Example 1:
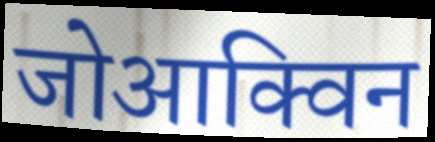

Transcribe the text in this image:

जोआक्विन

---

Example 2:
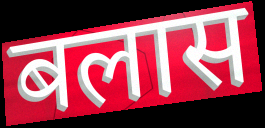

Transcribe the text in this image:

बलास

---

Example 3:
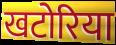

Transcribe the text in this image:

खटोरिया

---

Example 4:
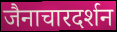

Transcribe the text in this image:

जैनाचारदर्शन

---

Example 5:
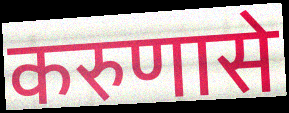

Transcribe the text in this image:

करुणासे